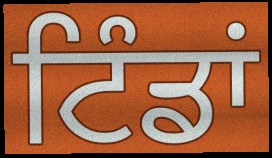
ਟਿੰਡਾਂ